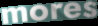
mores